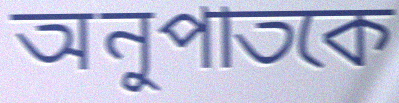
অনুপাতকে